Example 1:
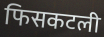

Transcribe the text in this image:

फिसकटली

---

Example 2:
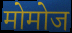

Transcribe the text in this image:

मोमोज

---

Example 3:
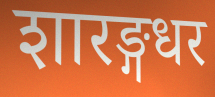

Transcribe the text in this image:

शारङ्गधर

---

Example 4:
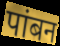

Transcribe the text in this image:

पांबन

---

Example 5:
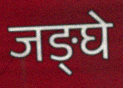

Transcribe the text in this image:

जङ्घे